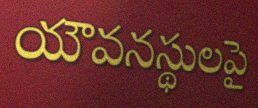
యౌవనస్థులపై